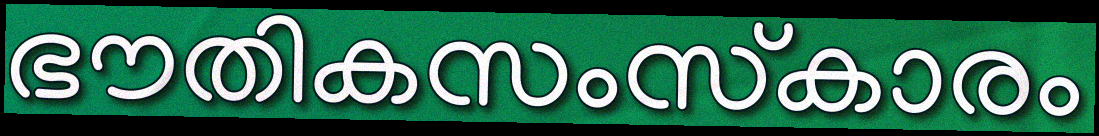
ഭൗതികസംസ്‌കാരം